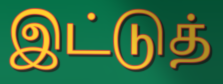
இட்டுத்